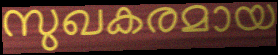
സുഖകരമായ